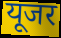
यूजर